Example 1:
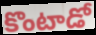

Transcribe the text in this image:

కొంటాడో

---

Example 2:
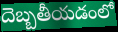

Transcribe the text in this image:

దెబ్బతీయడంలో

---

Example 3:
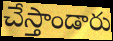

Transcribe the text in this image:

చేస్తాండారు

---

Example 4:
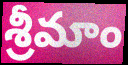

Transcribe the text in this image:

శ్రీమాం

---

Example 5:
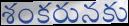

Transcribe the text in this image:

శంకరునకు